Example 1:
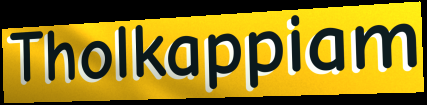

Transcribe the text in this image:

Tholkappiam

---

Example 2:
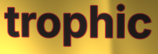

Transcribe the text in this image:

trophic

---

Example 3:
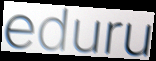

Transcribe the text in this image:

eduru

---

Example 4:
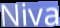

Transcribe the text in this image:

Niva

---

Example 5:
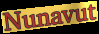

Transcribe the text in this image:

Nunavut